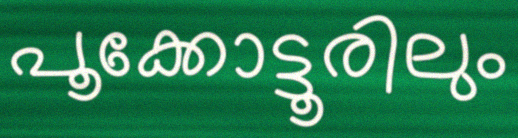
പൂക്കോട്ടൂരിലും